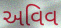
અવિવ